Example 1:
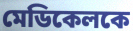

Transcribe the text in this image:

মেডিকেলকে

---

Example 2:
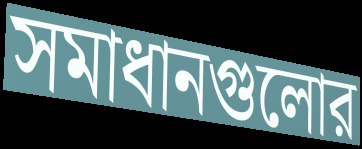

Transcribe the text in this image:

সমাধানগুলোর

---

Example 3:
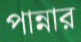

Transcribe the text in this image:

পান্নার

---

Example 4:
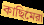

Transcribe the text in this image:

কাছিমেরা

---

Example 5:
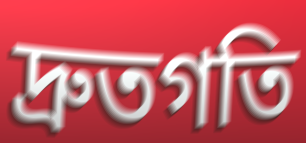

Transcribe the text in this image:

দ্রুতগতি